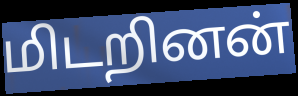
மிடறினன்